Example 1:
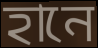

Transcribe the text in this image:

হানে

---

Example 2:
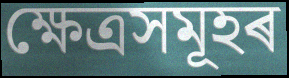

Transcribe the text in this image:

ক্ষেত্ৰসমূহৰ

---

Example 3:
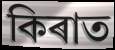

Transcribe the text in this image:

কিৰাত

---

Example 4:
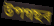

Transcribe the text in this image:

উপগছৰ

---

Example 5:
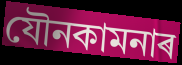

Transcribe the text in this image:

যৌনকামনাৰ